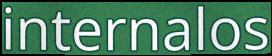
internalos